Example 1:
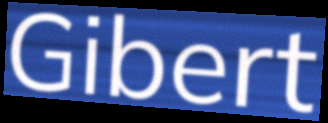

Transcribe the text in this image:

Gibert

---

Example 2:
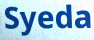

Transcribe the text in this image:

Syeda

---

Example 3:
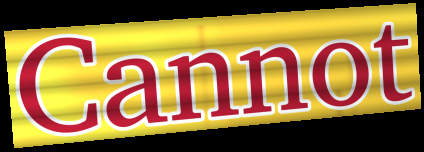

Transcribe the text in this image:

Cannot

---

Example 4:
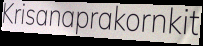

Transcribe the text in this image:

Krisanaprakornkit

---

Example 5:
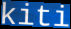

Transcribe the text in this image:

kiti